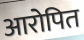
आरोपित